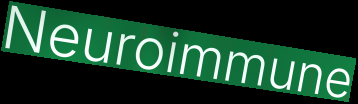
Neuroimmune